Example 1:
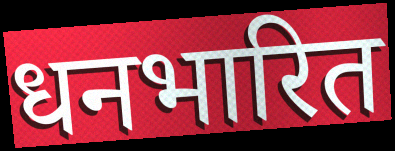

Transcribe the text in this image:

धनभारित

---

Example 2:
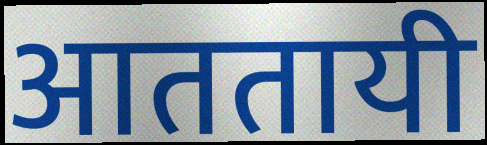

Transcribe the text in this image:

आततायी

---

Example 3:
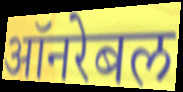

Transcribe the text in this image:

ऑनरेबल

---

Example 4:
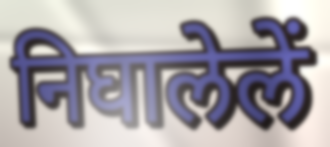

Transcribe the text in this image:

निघालेलें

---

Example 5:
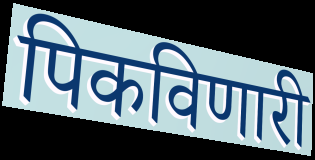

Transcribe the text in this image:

पिकविणारी